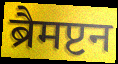
ब्रैमप्टन